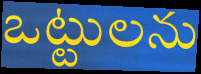
ఒట్టులను